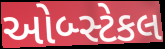
ઓબ્સ્ટેકલ